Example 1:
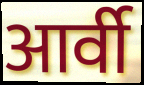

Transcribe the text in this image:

आर्वी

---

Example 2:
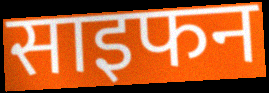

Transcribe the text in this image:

साइफन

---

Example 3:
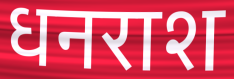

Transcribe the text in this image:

धनराश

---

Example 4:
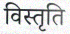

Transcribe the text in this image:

विस्तृति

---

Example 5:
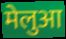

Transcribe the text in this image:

मेलुआ